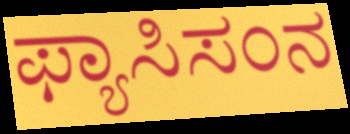
ಫ್ಯಾಸಿಸಂನ